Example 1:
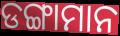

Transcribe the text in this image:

ଡଙ୍ଗାମାନ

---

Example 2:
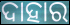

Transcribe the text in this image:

ଦାହାର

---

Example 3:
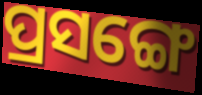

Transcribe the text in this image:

ପ୍ରସଙ୍ଗେ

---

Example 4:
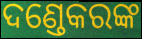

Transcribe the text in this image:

ଦଣ୍ଡେକରଙ୍କ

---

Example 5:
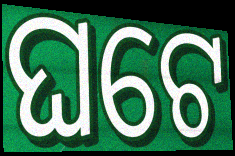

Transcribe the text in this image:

ଘଟେ